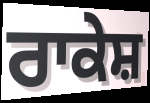
ਰਾਕੇਸ਼